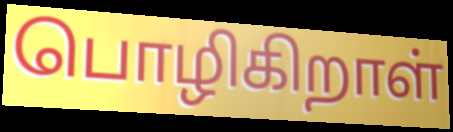
பொழிகிறாள்